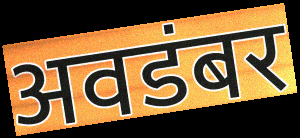
अवडंबर